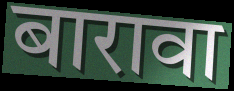
बारावा